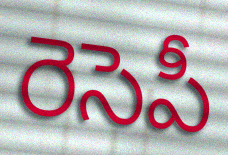
రెసెపీ